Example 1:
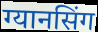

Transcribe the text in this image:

ग्यानसिंग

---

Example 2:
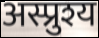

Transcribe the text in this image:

अस्प्रुश्य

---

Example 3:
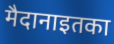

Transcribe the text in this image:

मैदानाइतका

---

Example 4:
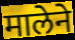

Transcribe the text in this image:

मालेने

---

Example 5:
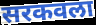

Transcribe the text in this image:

सरकवला